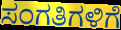
ಸಂಗತಿಗಳಿಗೆ